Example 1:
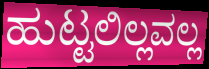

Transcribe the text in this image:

ಹುಟ್ಟಲಿಲ್ಲವಲ್ಲ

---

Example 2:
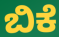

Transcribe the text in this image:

ಬಿಕೆ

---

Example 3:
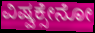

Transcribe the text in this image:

ವಿಷ್ವಕ್ಸೇನೋ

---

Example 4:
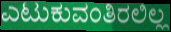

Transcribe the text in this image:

ಎಟುಕುವಂತಿರಲಿಲ್ಲ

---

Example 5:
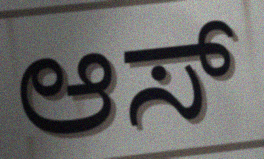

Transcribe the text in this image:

ಆಸ್